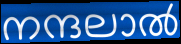
നന്ദലാൽ